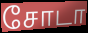
சோடா